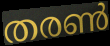
തരൺ